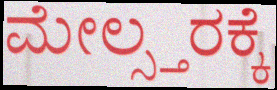
ಮೇಲ್ಸ್ತರಕ್ಕೆ